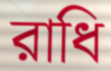
রাধি